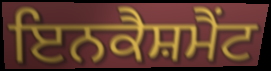
ਇਨਕੈਸ਼ਮੈਂਟ